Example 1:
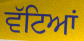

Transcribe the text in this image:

ਵੱਟਿਆਂ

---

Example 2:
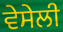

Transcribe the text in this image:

ਵੇਸੇਲੀ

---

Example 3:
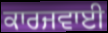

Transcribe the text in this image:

ਕਾਰਜਵਾਈ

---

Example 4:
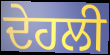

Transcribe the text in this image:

ਦੇਹਲੀ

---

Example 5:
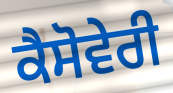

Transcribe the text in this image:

ਕੈਸੋਵੇਰੀ